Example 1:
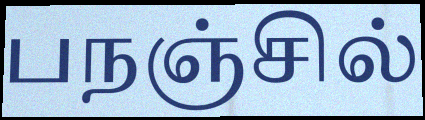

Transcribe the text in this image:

பநஞ்சில்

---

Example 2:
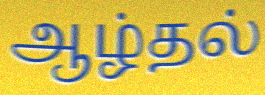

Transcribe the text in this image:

ஆழ்தல்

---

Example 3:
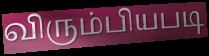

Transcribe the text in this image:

விரும்பியபடி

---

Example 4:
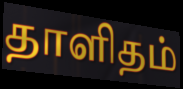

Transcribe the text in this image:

தாளிதம்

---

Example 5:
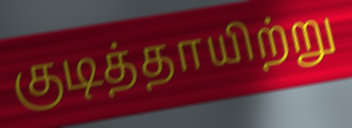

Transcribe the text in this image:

குடித்தாயிற்று